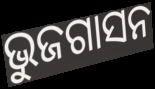
ଭୁଜଗାସନ